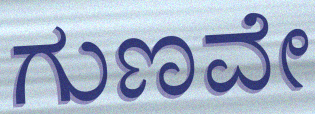
ಗುಣವೇ